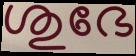
ശുഭേ